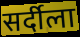
सर्दीला